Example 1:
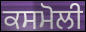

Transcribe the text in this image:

ਕਸਮੋਲੀ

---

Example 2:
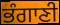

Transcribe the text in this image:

ਭੰਗਾਣੀ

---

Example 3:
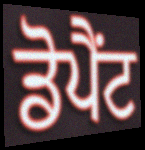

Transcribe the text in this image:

ਡੋਪੈਂਟ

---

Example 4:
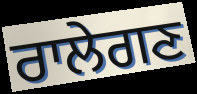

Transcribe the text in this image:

ਰਾਲੇਗਣ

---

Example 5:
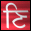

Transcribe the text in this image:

ਣਿ